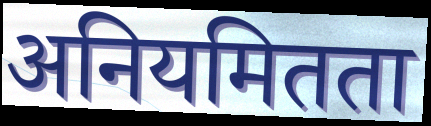
अनियमितता